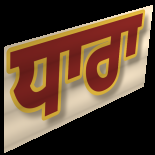
ਧਾਰਾ